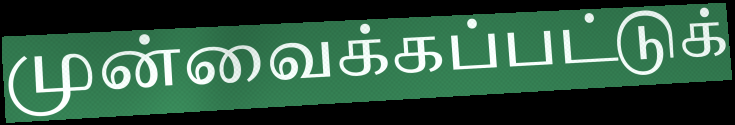
முன்வைக்கப்பட்டுக்